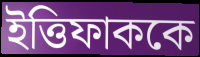
ইত্তিফাককে